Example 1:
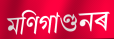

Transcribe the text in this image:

মণিগাণ্ডনৰ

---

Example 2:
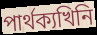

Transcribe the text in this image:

পাৰ্থক্যখিনি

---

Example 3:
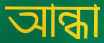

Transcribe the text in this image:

আন্ধা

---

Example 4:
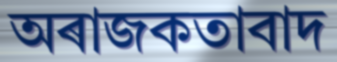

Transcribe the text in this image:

অৰাজকতাবাদ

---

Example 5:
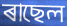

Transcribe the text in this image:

ৰাছেল